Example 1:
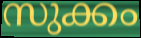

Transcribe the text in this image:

സുക്കം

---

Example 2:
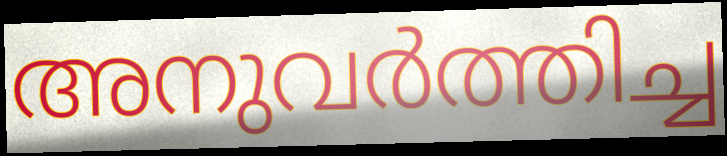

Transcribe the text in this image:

അനുവർത്തിച്ച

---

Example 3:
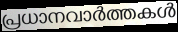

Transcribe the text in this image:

പ്രധാനവാർത്തകൾ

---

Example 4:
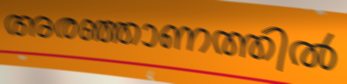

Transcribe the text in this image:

അരഞ്ഞാണത്തിൽ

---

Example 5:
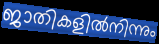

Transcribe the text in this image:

ജാതികളിൽനിന്നും